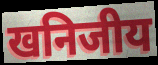
खनिजीय